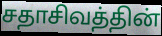
சதாசிவத்தின்